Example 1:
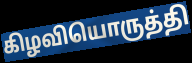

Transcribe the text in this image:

கிழவியொருத்தி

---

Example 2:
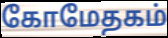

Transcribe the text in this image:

கோமேதகம்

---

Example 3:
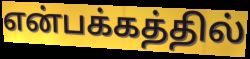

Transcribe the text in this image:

என்பக்கத்தில்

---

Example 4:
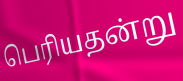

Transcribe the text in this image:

பெரியதன்று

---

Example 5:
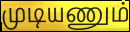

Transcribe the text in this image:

முடியணும்